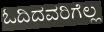
ಓದಿದವರಿಗೆಲ್ಲ